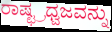
ರಾಷ್ಟ್ರಧ್ವಜವನ್ನು